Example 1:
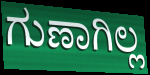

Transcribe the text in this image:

ಗುಣಾಗಿಲ್ಲ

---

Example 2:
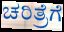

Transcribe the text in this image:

ಚರಿತ್ರೆಗೆ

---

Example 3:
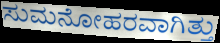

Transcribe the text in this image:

ಸುಮನೋಹರವಾಗಿತ್ತು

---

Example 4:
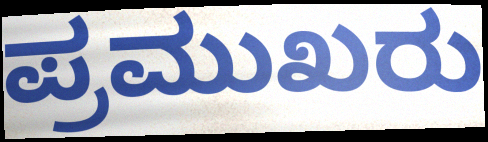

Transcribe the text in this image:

ಪ್ರಮುಖರು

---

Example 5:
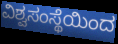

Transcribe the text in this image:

ವಿಶ್ವಸಂಸ್ಥೆಯಿಂದ